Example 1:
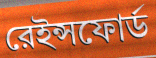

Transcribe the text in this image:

রেইন্সফোর্ড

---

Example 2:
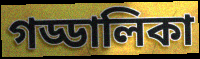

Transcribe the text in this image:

গড্ডালিকা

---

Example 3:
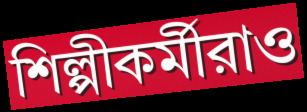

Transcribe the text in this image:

শিল্পীকর্মীরাও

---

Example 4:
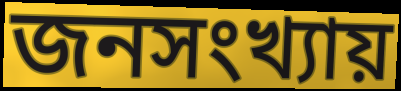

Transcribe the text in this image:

জনসংখ্যায়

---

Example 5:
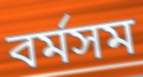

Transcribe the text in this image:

বর্মসম